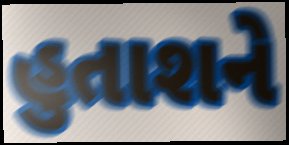
હુતાશને